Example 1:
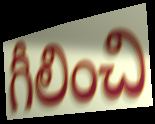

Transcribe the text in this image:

గీలించి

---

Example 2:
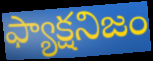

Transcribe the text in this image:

ఫ్యాక్షనిజం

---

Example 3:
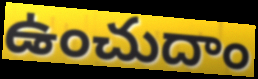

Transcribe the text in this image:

ఉంచుదాం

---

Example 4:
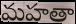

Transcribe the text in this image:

మహతా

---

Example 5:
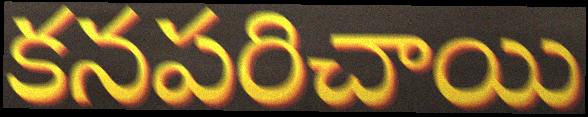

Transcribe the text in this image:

కనపరిచాయి